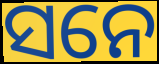
ସନେ